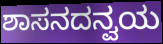
ಶಾಸನದನ್ವಯ